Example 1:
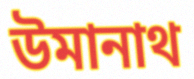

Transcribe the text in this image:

উমানাথ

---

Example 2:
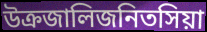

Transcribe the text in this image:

উক্রজালিজনিতসিয়া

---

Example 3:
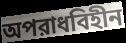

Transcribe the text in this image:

অপরাধবিহীন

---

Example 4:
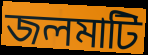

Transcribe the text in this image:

জলমাটি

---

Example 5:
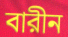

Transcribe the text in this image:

বারীন